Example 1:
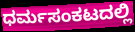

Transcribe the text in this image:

ಧರ್ಮಸಂಕಟದಲ್ಲಿ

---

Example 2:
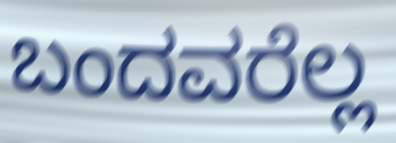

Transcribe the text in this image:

ಬಂದವರೆಲ್ಲ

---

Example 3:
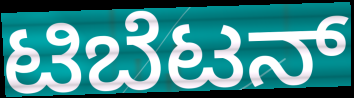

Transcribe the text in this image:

ಟಿಬೆಟನ್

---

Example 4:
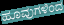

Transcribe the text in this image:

ಹೂವುಗಳಿಂದ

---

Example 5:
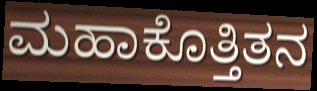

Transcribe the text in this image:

ಮಹಾಕೊತ್ತಿತನ